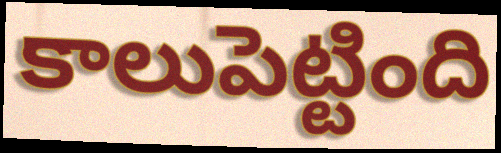
కాలుపెట్టింది